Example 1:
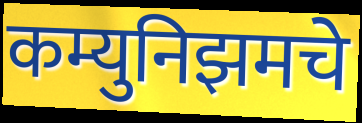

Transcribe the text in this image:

कम्युनिझमचे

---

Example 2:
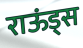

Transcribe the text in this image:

राऊंड्स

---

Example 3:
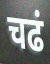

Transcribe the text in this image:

चढं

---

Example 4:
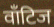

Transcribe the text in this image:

वाँटिज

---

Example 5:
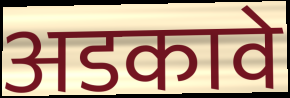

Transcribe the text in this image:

अडकावे